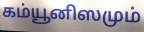
கம்யூனிஸமும்